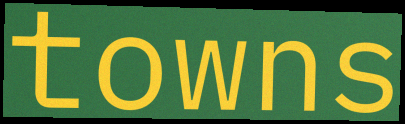
towns